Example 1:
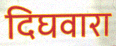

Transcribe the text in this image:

दिघवारा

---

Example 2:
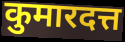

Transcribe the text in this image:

कुमारदत्त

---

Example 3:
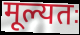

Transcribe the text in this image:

मूल्यतः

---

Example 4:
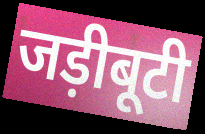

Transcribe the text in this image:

जड़ीबूटी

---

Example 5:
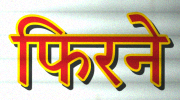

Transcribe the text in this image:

फिरने